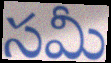
సమీ